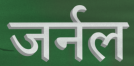
जर्नल